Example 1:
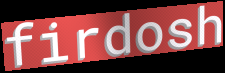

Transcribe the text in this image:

firdosh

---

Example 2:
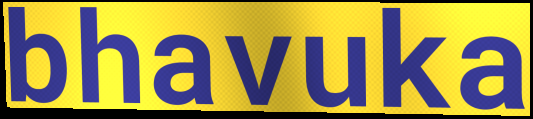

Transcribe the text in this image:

bhavuka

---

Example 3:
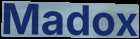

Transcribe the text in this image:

Madox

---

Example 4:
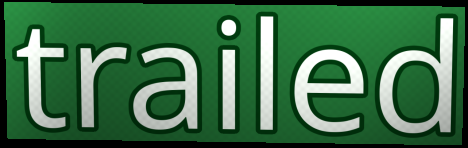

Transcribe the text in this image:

trailed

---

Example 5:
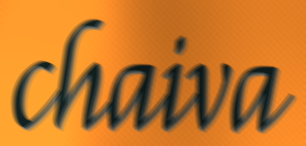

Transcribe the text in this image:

chaiva